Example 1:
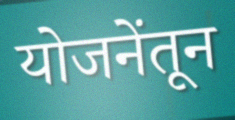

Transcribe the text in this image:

योजनेंतून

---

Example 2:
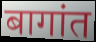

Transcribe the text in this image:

बागांत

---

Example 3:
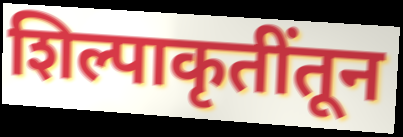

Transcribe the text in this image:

शिल्पाकृतींतून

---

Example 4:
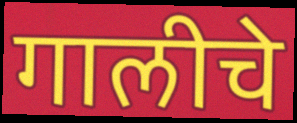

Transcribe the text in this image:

गालीचे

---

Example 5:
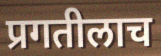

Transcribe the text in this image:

प्रगतीलाच